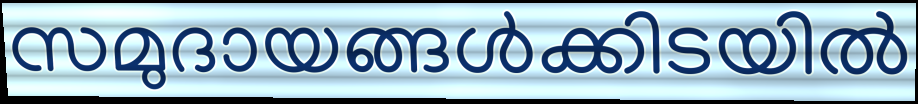
സമുദായങ്ങൾക്കിടയിൽ